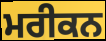
ਮਰੀਕਨ